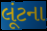
લૂંટના